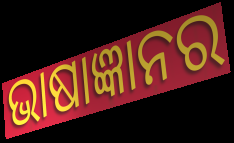
ଭାଷାଜ୍ଞାନର